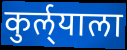
कुर्ल्याला